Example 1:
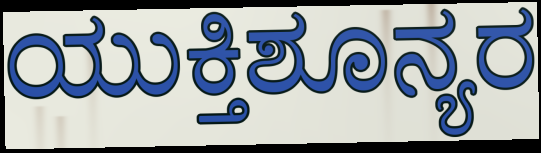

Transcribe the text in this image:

ಯುಕ್ತಿಶೂನ್ಯರ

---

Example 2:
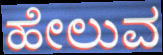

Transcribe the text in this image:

ಹೇಲುವ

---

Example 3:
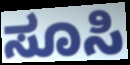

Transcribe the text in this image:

ಸೂಸಿ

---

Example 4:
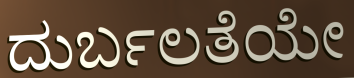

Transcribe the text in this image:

ದುರ್ಬಲತೆಯೇ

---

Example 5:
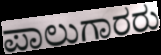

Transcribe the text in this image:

ಪಾಲುಗಾರರು